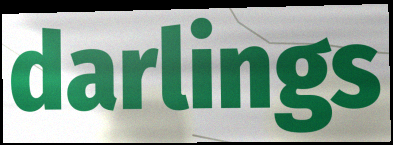
darlings